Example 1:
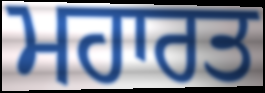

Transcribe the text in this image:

ਮਹਾਰਤ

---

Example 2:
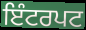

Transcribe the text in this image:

ਇੰਟਰਪਟ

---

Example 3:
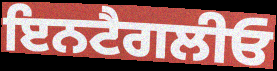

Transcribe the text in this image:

ਇਨਟੈਗਲੀਓ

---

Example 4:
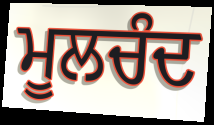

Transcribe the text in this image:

ਮੂਲਚੰਦ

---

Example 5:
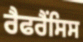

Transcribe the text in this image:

ਰੈਫਰੈਂਸਿਸ